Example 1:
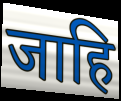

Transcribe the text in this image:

जाहि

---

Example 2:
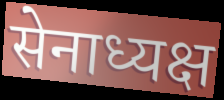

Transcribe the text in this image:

सेनाध्यक्ष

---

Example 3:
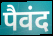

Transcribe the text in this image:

पैवंद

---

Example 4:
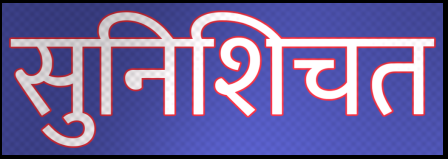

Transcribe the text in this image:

सुनिशिचत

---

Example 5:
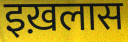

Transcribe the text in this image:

इख़लास